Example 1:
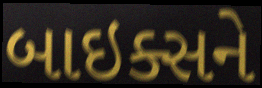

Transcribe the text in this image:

બાઇક્સને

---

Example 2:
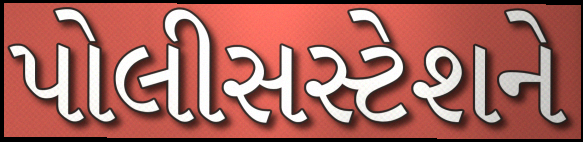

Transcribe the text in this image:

પોલીસસ્ટેશને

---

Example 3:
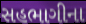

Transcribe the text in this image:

સહભાગીના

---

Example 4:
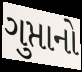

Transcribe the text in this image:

ગુપ્તાનો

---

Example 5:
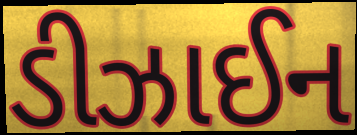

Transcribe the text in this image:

ડીઝાઈન